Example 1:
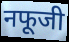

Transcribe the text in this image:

नफूजी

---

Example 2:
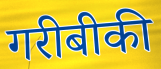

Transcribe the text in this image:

गरीबीकी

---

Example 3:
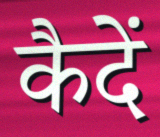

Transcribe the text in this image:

कैदें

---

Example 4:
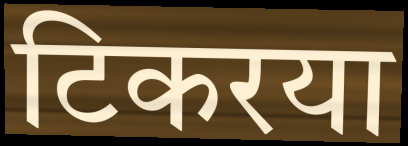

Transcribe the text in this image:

टिकरया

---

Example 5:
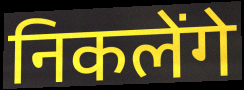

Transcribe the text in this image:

निकलेंगे